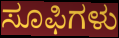
ಸೂಫಿಗಳು